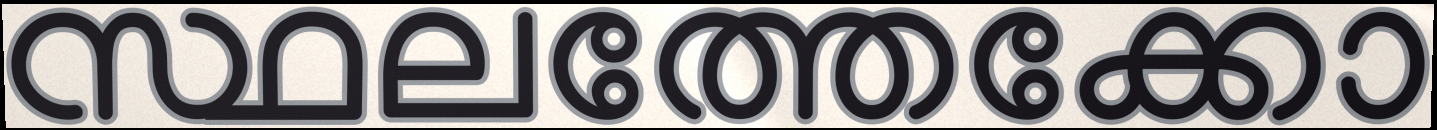
സ്ഥലത്തേക്കോ